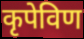
कृपेविण